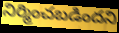
నిర్మించబడిందని